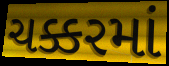
ચક્કરમાં